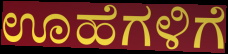
ಊಹೆಗಳಿಗೆ